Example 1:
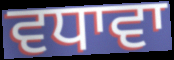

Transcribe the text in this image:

ਵਧਾਵਾ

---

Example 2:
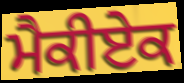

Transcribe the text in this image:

ਮੈਕੀਏਕ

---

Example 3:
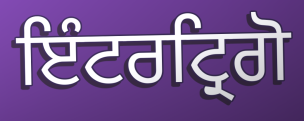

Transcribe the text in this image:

ਇੰਟਰਟ੍ਰਿਗੋ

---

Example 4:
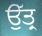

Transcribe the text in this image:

ਉੱਤ੍ਰ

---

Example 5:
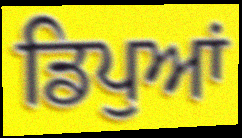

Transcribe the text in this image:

ਡਿਪੁਆਂ